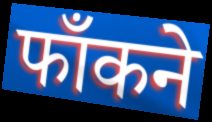
फाँकने